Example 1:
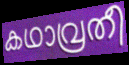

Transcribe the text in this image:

കഥാവ്രതീ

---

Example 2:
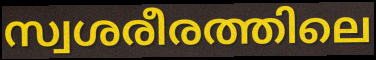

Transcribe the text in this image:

സ്വശരീരത്തിലെ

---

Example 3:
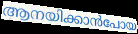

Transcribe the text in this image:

ആനയിക്കാൻപോയ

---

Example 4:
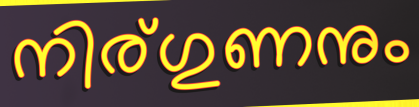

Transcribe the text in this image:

നിര്ഗുണനും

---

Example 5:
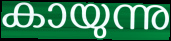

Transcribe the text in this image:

കായുന്നു